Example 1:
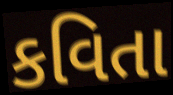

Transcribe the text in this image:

કવિતા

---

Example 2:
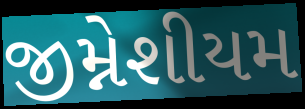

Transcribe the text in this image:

જીમ્નેશીયમ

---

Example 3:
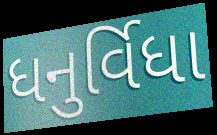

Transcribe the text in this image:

ધનુર્વિધા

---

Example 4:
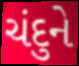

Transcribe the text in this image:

ચંદુને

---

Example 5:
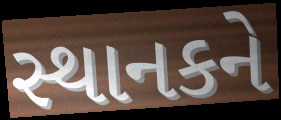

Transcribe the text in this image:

સ્થાનકને